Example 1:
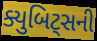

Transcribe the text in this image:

ક્યુબિટ્સની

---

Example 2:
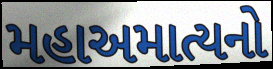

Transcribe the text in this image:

મહાઅમાત્યનો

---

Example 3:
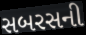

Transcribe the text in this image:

સબરસની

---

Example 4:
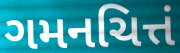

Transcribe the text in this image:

ગમનચિત્તં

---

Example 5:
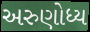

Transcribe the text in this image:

અરુણોધ્ય